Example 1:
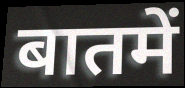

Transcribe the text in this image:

बातमें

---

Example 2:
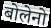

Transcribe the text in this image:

बोलेनो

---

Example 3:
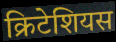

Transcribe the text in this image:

क्रिटेशियस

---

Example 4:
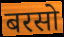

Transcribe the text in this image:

बरसो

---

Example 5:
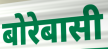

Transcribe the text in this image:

बोरेबासी